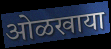
ओळखाया